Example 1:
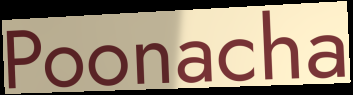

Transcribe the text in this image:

Poonacha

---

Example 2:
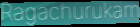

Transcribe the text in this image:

Ragachurukam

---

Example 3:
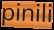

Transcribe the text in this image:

pinili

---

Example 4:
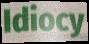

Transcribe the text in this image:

Idiocy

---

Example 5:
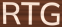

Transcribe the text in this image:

RTG